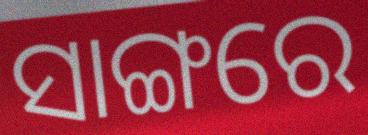
ସାଙ୍ଗରେ